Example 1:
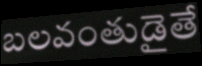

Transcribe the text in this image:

బలవంతుడైతే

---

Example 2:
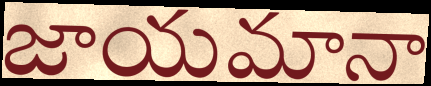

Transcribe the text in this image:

జాయమానా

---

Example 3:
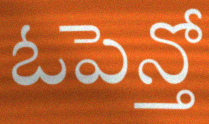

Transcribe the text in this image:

ఓపెన్తో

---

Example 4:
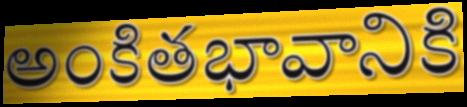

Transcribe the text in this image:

అంకితభావానికి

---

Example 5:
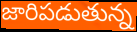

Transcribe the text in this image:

జారిపడుతున్న